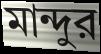
মান্দুর